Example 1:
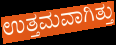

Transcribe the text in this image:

ಉತ್ತಮವಾಗಿತ್ತು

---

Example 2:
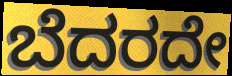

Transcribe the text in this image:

ಬೆದರದೇ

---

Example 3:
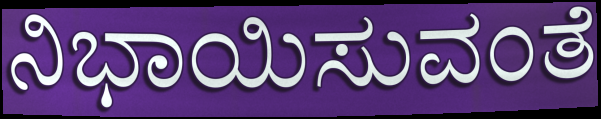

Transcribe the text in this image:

ನಿಭಾಯಿಸುವಂತೆ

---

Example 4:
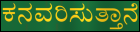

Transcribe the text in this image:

ಕನವರಿಸುತ್ತಾನೆ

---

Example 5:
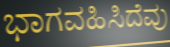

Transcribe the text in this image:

ಭಾಗವಹಿಸಿದೆವು